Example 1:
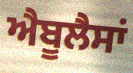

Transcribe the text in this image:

ਐਬੂਲੈਸਾਂ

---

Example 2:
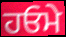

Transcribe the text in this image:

ਹਓਮੇ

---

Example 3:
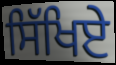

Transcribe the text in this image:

ਸਿੱਖਿਏ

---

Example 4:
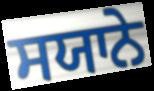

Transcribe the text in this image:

ਸਯਾਨੇ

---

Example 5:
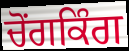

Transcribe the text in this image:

ਚੋਂਗਕਿੰਗ